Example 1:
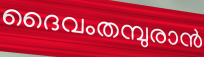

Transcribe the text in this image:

ദൈവംതമ്പുരാൻ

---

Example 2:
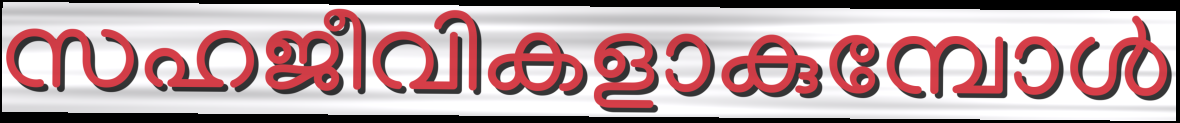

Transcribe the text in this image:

സഹജീവികളാകുമ്പോൾ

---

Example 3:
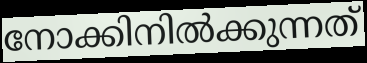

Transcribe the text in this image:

നോക്കിനിൽക്കുന്നത്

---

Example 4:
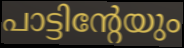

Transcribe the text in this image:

പാട്ടിന്റേയും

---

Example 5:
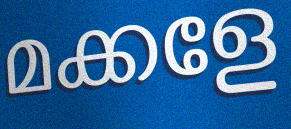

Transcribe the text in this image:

മക്കളേ